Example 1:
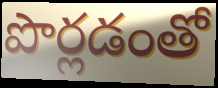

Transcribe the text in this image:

పొర్లడంతో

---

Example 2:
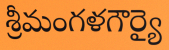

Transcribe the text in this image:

శ్రీమంగళగౌర్యై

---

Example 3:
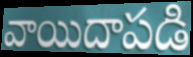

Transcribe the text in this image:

వాయిదాపడి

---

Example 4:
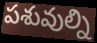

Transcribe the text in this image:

పశువుల్ని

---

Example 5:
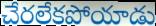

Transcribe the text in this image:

చేరలేకపోయాడు